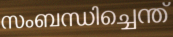
സംബന്ധിച്ചെന്ത്